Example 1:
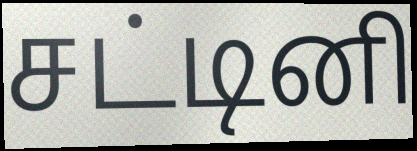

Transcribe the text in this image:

சட்டினி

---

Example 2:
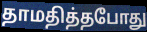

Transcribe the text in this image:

தாமதித்தபோது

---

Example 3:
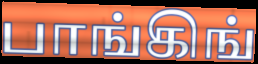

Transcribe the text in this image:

பாங்கிங்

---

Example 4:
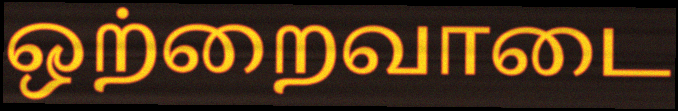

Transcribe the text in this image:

ஒற்றைவாடை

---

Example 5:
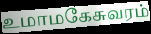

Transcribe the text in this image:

உமாமகேசுவரம்